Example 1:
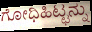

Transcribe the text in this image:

ಗೋಧಿಹಿಟ್ಟನ್ನು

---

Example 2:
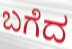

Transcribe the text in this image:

ಬಗೆದ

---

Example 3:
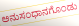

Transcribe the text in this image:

ಅನುಸಂಧಾನಗೊಂಡು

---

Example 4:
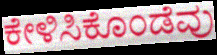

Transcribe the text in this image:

ಕೇಳಿಸಿಕೊಂಡೆವು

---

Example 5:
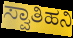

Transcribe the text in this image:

ಸ್ವಾತಿಹನಿ